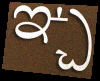
ఞ్చ